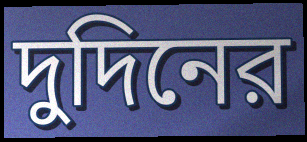
দুদিনের